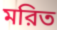
মরিত